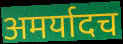
अमर्यादच